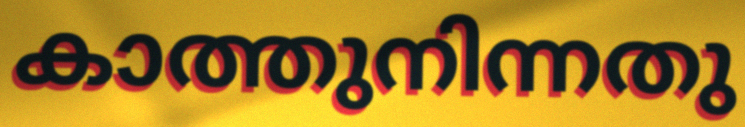
കാത്തുനിന്നതു